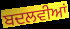
ਬਦਲਵੀਆਂ